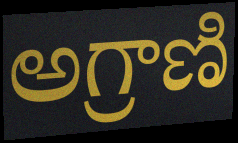
అగ్రాణి